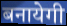
बनायेगी